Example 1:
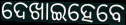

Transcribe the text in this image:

ଦେଖାଇହେବେ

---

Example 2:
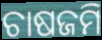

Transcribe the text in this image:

ଚାଷଜମି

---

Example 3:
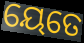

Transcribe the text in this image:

ୟେତେ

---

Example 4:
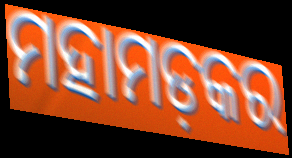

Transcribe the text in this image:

ମହାମଡ଼କର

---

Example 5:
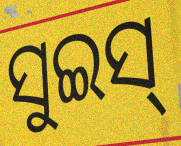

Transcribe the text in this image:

ସୁଇସ୍